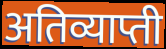
अतिव्याप्ती